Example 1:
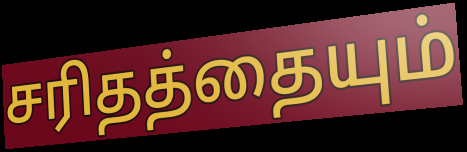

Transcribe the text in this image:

சரிதத்தையும்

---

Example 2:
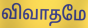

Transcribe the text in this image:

விவாதமே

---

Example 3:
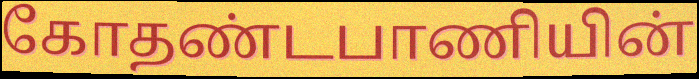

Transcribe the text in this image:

கோதண்டபாணியின்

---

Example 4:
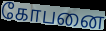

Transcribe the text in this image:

கோபனை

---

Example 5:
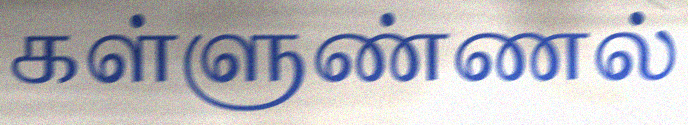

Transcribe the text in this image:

கள்ளுண்ணல்